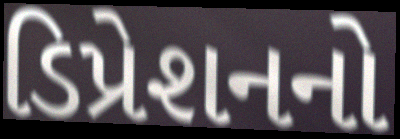
ડિપ્રેશનનો